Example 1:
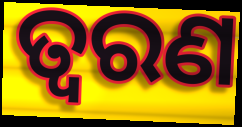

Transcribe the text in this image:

ତ୍ୱରଣ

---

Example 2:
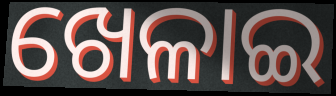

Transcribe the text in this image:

ଖେଳାଇ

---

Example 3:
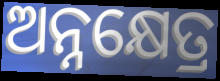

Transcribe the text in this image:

ଅନ୍ନକ୍ଷେତ୍ର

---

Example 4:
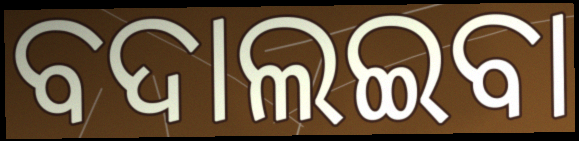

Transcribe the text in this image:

ବଦାଲଇବା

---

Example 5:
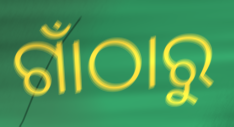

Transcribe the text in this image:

ଗାଁଠାରୁ